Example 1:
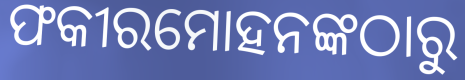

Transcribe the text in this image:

ଫକୀରମୋହନଙ୍କଠାରୁ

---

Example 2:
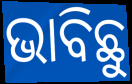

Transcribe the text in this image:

ଭାବିଛୁ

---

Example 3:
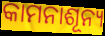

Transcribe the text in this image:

କାମନାଶୂନ୍ୟ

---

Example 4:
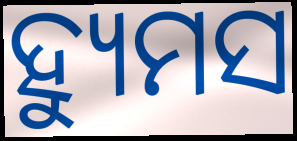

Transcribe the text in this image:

ହ୍ୟୁମସ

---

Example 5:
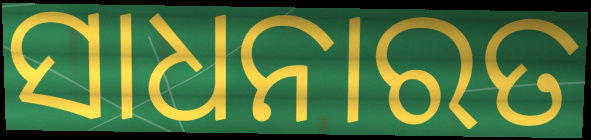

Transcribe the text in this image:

ସାଧନାରତ